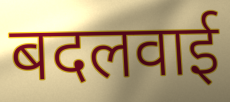
बदलवाई